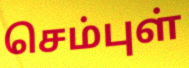
செம்புள்